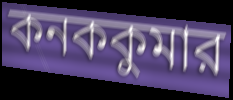
কনককুমার